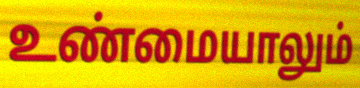
உண்மையாலும்